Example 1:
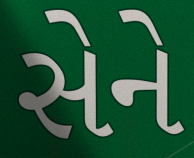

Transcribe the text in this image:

સેને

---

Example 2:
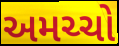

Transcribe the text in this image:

અમચ્ચો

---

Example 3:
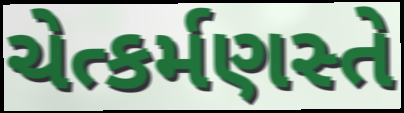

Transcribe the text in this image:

ચેત્કર્મણસ્તે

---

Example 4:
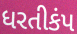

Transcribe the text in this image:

ધરતીકંપ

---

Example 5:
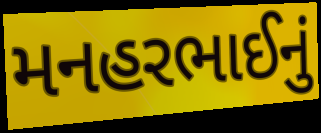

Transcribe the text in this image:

મનહરભાઈનું